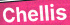
Chellis